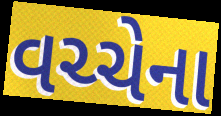
વચ્ચેના